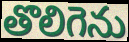
తొలిగెను